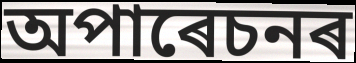
অপাৰেচনৰ